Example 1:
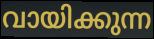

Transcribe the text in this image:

വായിക്കുന്ന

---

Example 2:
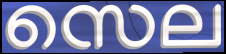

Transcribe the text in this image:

സെല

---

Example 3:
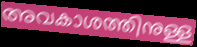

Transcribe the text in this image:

അവകാശത്തിനുള്ള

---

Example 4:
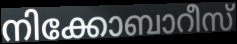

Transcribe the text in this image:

നിക്കോബാറീസ്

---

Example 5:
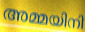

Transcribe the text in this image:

അമ്മയിനി